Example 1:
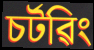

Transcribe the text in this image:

চৰ্টৱিং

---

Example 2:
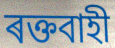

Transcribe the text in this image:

ৰক্তবাহী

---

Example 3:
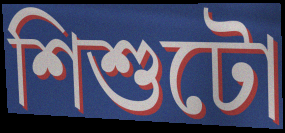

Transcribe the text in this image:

শিশুটো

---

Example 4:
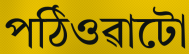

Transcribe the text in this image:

পঠিওৱাটো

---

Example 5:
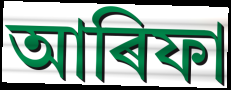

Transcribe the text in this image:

আৰিফা